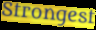
Strongest